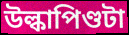
উল্কাপিণ্ডটা